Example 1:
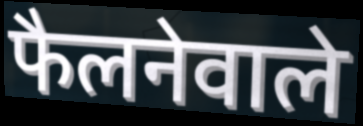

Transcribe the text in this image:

फैलनेवाले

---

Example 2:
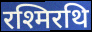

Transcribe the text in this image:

रश्मिरथि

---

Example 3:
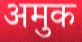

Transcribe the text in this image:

अमुक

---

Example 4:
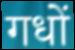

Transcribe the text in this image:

गधों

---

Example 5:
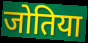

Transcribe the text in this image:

जोतिया